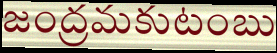
జంద్రమకుటంబు